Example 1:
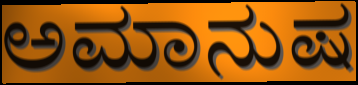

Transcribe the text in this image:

ಅಮಾನುಷ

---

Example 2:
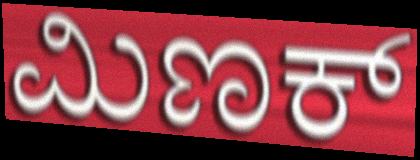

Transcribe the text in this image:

ಮಿಣಕ್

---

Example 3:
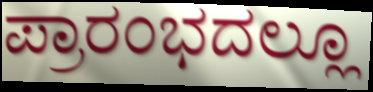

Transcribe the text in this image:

ಪ್ರಾರಂಭದಲ್ಲೂ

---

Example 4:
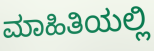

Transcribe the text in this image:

ಮಾಹಿತಿಯಲ್ಲಿ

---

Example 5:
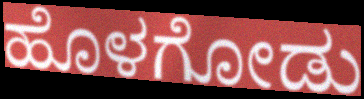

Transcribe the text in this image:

ಹೊಳಗೋಡು